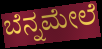
ಬೆನ್ನಮೇಲೆ